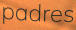
padres